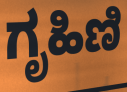
ಗೃಹಿಣಿ